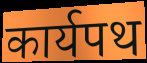
कार्यपथ